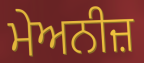
ਮੇਅਨੀਜ਼